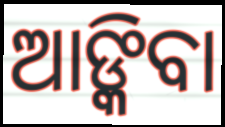
ଆଙ୍କିବା